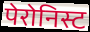
पेरोनिस्ट